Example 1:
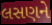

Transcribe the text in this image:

લસણને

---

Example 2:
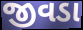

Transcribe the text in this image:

જીવડા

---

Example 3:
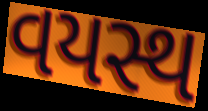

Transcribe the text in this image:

વયસ્થ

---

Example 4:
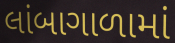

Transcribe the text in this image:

લાંબાગાળામાં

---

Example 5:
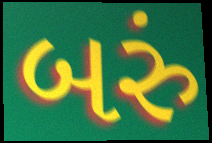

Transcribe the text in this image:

બરું